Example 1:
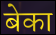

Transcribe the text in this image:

बेका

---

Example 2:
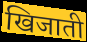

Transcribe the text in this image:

खिजाती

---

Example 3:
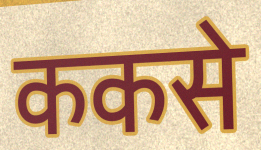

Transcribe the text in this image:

ककसे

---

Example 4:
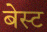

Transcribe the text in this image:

बेस्‍ट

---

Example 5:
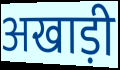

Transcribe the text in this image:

अखाड़ी